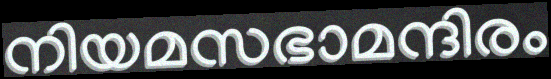
നിയമസഭാമന്ദിരം